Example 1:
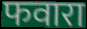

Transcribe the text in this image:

फवारा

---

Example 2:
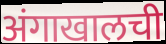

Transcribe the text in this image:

अंगाखालची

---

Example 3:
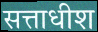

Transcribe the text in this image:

सत्ताधीश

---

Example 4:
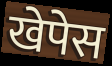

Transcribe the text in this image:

खेपेस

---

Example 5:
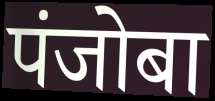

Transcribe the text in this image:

पंजोबा